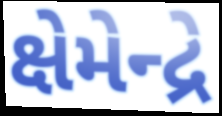
ક્ષેમેન્દ્રે